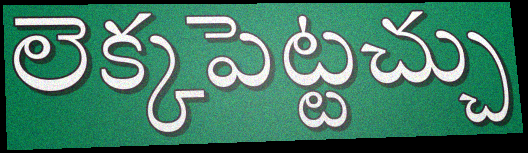
లెక్కపెట్టచ్చు